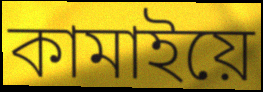
কামাইয়ে